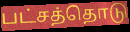
பட்சத்தொடு